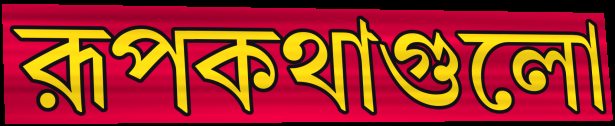
রূপকথাগুলো